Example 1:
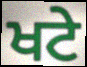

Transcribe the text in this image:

ਖਟੇ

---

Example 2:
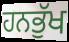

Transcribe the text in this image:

ਹਨਭੁੱਖ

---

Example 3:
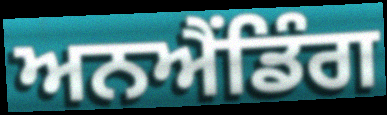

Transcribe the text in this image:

ਅਨਐਂਡਿੰਗ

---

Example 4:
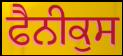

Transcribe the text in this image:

ਫੈਨੀਕੁਸ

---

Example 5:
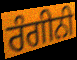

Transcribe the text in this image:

ਰੰਗੀਨੀ